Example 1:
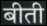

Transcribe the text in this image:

बीती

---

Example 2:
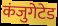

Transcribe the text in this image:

कंजुगेटेड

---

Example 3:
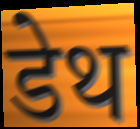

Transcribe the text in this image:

डेथ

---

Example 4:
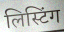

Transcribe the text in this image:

लिस्टिंग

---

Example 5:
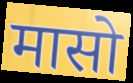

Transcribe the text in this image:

मासो